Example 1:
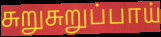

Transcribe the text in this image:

சுறுசுறுப்பாய்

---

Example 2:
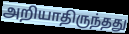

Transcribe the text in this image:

அறியாதிருந்தது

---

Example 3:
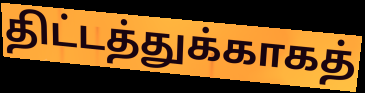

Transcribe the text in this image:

திட்டத்துக்காகத்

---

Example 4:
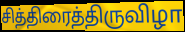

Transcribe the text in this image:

சித்திரைத்திருவிழா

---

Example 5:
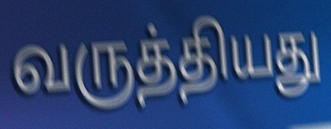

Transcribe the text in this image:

வருத்தியது